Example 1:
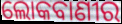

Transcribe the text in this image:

ଲୋକବାଣୀର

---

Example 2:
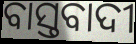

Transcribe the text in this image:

ବାସ୍ତବାଦୀ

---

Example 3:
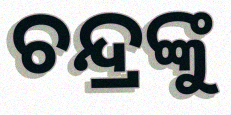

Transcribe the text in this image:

ଚନ୍ଦ୍ରଙ୍କୁ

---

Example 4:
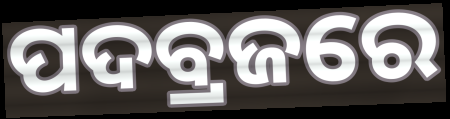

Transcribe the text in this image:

ପଦବ୍ରଜରେ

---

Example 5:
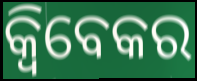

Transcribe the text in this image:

କ୍ୱିବେକର